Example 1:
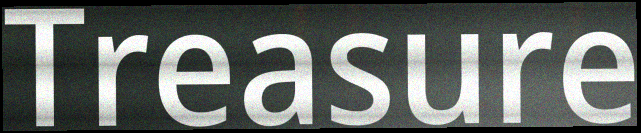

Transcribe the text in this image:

Treasure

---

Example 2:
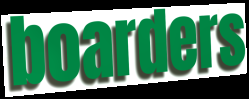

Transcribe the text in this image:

boarders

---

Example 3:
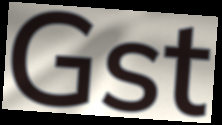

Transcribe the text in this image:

Gst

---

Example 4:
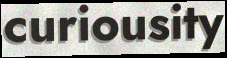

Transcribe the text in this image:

curiousity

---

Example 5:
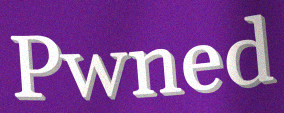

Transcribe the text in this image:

Pwned